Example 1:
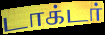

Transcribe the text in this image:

டாக்டர்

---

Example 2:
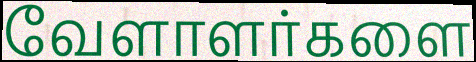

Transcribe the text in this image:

வேளாளர்களை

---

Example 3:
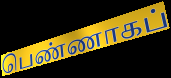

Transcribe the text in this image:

பெண்ணாகப்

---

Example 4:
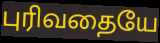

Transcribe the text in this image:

புரிவதையே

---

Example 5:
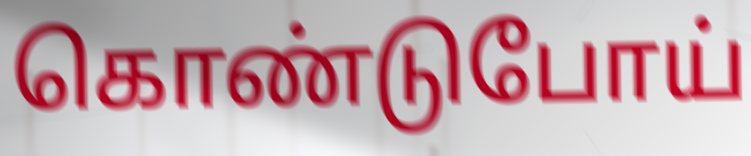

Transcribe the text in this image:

கொண்டுபோய்